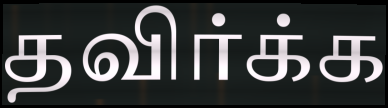
தவிர்க்க